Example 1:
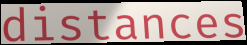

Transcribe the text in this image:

distances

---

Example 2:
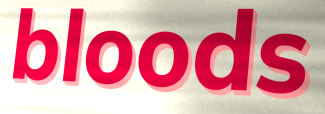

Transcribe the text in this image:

bloods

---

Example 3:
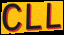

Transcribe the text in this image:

CLL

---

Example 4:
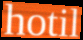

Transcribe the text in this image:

hotil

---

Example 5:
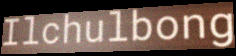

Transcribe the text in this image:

Ilchulbong